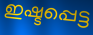
ഇഷ്ടപ്പെട്ട